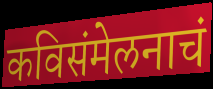
कविसंमेलनाचं